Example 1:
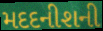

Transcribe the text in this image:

મદદનીશની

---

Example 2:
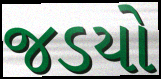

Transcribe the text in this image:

જડયો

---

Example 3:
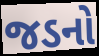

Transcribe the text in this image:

જડનો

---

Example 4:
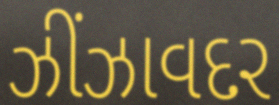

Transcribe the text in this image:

ઝીંઝાવદર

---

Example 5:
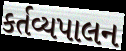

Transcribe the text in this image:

કર્તવ્યપાલન